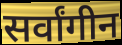
सर्वांगीन